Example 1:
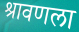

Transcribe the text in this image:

श्रावणला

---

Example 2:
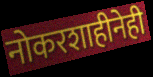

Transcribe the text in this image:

नोकरशाहीनेही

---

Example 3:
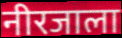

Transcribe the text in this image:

नीरजाला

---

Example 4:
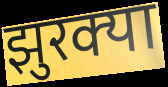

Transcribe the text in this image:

झुरक्या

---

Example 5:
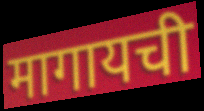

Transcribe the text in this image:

मागायची